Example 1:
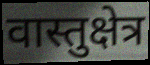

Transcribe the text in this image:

वास्तुक्षेत्र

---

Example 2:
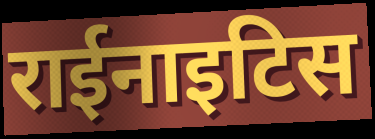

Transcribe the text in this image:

राईनाइटिस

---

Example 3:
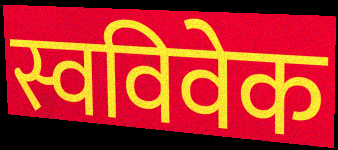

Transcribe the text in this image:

स्वविवेक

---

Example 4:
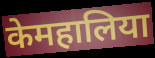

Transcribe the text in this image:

केमहालिया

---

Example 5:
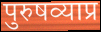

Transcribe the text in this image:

पुरुषव्याप्र